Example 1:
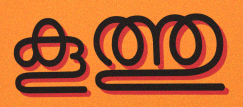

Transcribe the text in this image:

കൂത്തു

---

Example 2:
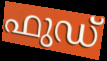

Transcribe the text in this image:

ഫുഡ്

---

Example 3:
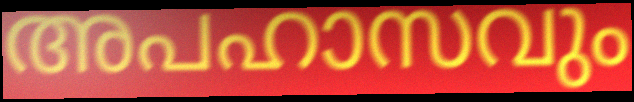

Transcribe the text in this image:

അപഹാസവും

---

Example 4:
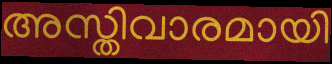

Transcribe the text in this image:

അസ്തിവാരമായി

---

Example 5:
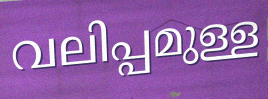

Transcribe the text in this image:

വലിപ്പമുള്ള